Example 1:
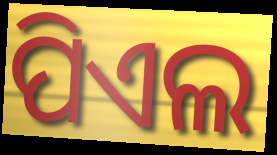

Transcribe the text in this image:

ପିଏଲ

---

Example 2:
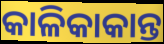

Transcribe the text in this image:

କାଳିକାକାନ୍ତ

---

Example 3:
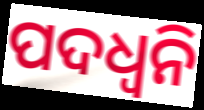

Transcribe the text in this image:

ପଦଧ୍ୱନି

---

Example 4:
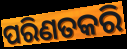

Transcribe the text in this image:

ପରିଣତକରି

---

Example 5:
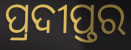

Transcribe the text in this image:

ପ୍ରଦୀପ୍ତର